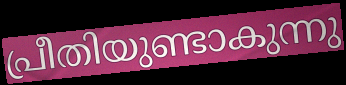
പ്രീതിയുണ്ടാകുന്നു